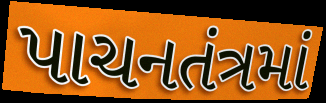
પાચનતંત્રમાં